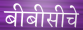
बीबीसीचे